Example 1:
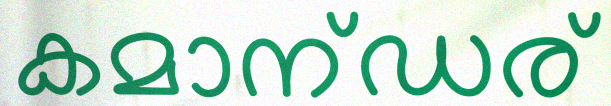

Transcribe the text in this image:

കമാന്ഡര്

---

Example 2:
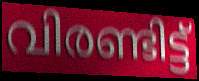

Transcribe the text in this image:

വിരണ്ടിട്ട്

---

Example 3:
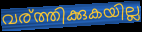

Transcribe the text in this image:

വര്ത്തിക്കുകയില്ല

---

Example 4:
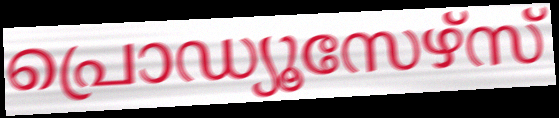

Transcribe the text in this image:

പ്രൊഡ്യൂസേഴ്സ്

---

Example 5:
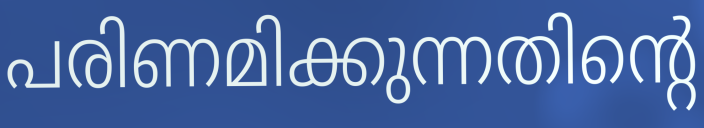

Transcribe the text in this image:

പരിണമിക്കുന്നതിന്റെ